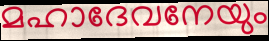
മഹാദേവനേയും